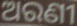
ଅରଣୀ